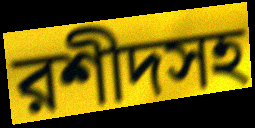
রশীদসহ